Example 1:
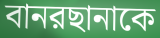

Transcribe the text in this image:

বানরছানাকে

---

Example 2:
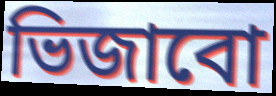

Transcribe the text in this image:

ভিজাবো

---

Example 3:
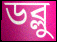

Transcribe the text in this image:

ডব্লু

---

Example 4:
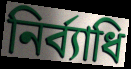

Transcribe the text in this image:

নির্ব্যাধি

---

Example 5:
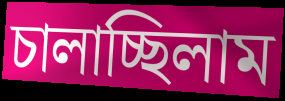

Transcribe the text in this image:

চালাচ্ছিলাম